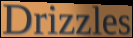
Drizzles